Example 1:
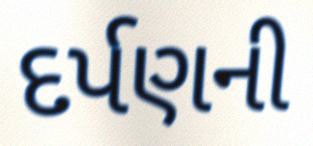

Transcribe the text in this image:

દર્પણની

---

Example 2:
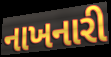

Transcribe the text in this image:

નાખનારી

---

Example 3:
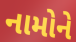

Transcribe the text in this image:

નામોને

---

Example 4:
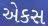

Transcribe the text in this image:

એકસ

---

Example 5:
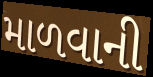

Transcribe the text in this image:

માળવાની